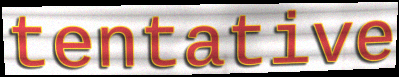
tentative